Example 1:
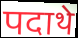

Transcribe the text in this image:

पदाथे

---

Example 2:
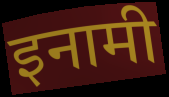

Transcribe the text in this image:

इनामी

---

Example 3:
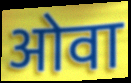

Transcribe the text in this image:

ओवा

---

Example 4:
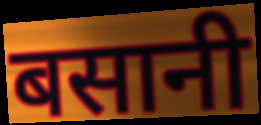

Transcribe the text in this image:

बसानी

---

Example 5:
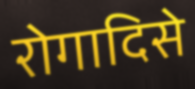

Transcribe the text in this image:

रोगादिसे